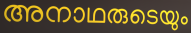
അനാഥരുടെയും